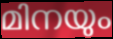
മിനയും